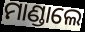
ମାଣ୍ଡାଲେ